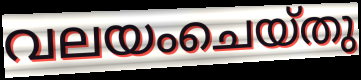
വലയംചെയ്തു